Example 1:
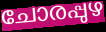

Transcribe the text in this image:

ചോരപ്പുഴ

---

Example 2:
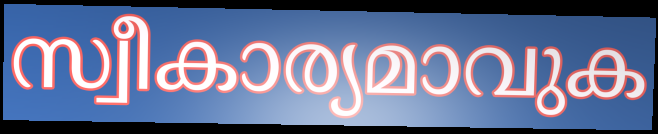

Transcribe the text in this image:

സ്വീകാര്യമാവുക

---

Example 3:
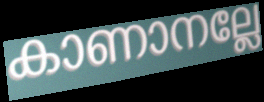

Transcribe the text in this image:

കാണാനല്ലേ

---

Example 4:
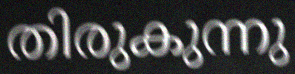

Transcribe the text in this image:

തിരുകുന്നു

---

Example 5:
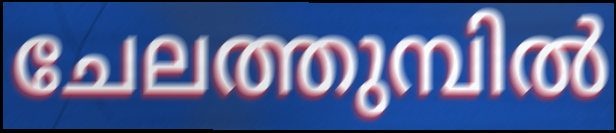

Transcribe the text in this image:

ചേലത്തുമ്പിൽ